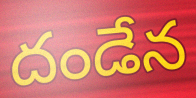
దండేన